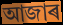
আজাৰ